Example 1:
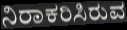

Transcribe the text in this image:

ನಿರಾಕರಿಸಿರುವ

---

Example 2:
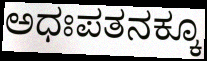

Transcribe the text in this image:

ಅಧಃಪತನಕ್ಕೂ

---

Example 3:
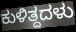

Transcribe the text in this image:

ಕುಳಿತ್ದದಳು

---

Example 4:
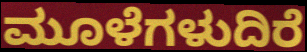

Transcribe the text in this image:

ಮೂಳೆಗಳುದಿರೆ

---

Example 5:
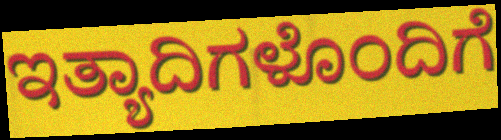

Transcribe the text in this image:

ಇತ್ಯಾದಿಗಳೊಂದಿಗೆ